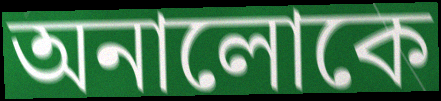
অনালোকে